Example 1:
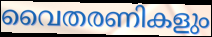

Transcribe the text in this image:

വൈതരണികളും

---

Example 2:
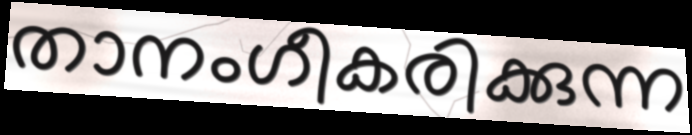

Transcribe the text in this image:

താനംഗീകരിക്കുന്ന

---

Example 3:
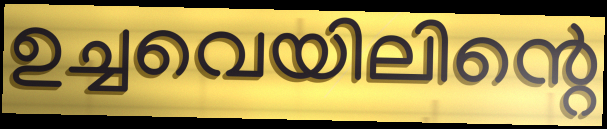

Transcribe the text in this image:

ഉച്ചവെയിലിന്റെ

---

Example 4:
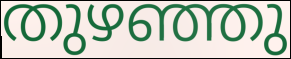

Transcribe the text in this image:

തുഴഞ്ഞു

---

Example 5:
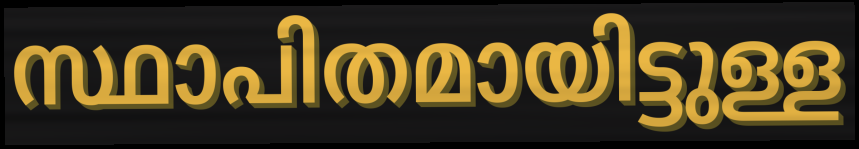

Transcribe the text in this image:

സ്ഥാപിതമായിട്ടുള്ള